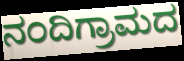
ನಂದಿಗ್ರಾಮದ